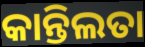
କାନ୍ତିଲତା